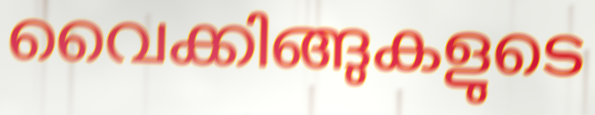
വൈക്കിങ്ങുകളുടെ